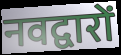
नवद्वारों